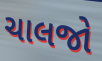
ચાલજો